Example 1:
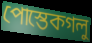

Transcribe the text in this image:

পোস্তেকগলু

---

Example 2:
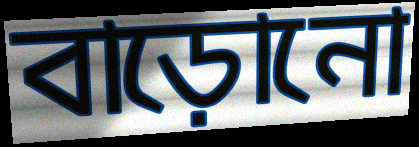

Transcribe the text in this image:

বাড়োনো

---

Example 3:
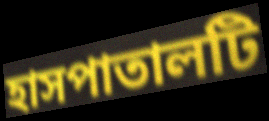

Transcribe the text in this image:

হাসপাতালটি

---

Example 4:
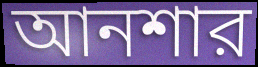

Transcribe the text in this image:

আনশার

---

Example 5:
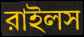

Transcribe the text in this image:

রাইলস